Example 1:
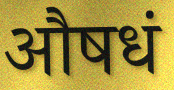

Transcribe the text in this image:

औषधं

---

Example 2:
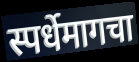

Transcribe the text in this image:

स्पर्धेमागचा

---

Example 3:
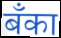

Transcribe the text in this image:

बॅंका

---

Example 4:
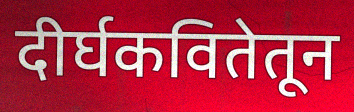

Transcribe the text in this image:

दीर्घकवितेतून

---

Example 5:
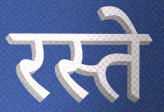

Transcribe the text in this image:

रस्ते